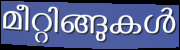
മീറ്റിങ്ങുകൾ